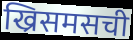
ख्रिसमसची